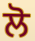
ਲੋ